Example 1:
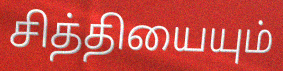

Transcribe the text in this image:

சித்தியையும்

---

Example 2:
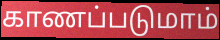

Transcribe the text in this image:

காணப்படுமாம்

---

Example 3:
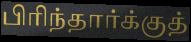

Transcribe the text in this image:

பிரிந்தார்க்குத்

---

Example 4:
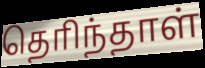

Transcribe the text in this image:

தெரிந்தாள்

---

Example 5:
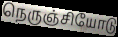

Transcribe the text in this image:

நெருஞ்சியோடு